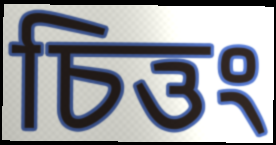
চিত্তং